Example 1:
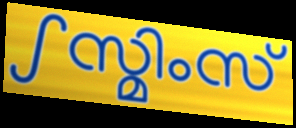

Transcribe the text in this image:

ഽസ്മിംസ്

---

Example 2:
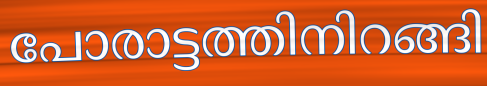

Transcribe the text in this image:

പോരാട്ടത്തിനിറങ്ങി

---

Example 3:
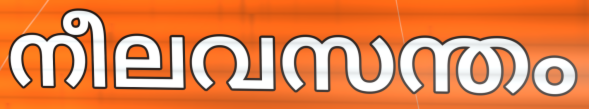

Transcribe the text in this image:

നീലവസന്തം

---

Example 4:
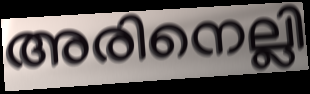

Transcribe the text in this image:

അരിനെല്ലി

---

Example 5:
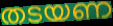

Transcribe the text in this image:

തടയണ